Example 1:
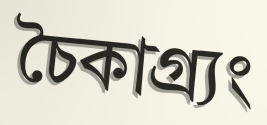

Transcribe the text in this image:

চৈকাগ্র্যং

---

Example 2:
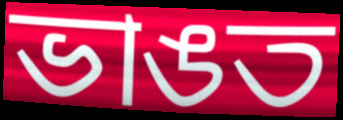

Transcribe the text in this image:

ভাঙত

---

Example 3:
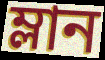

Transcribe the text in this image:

ম্লান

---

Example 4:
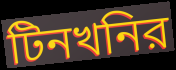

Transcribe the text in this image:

টিনখনির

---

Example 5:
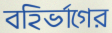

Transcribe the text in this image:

বহির্ভাগের